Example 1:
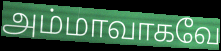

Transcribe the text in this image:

அம்மாவாகவே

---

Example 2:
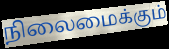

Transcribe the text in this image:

நிலைமைக்கும்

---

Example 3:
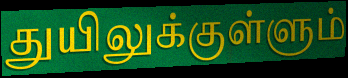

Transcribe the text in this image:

துயிலுக்குள்ளும்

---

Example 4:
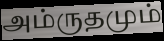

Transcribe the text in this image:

அம்ருதமும்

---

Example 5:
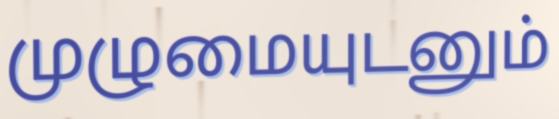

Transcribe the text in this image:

முழுமையுடனும்